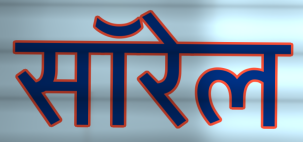
सॉरेल